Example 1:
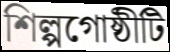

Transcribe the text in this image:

শিল্পগোষ্ঠীটি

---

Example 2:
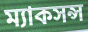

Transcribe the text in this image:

ম্যাকসন্স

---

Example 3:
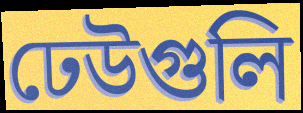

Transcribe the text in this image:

ঢেউগুলি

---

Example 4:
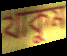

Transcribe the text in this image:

থাকুম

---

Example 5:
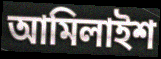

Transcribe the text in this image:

আমিলাইশ